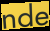
nde